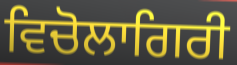
ਵਿਚੋਲਾਗਿਰੀ